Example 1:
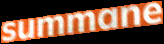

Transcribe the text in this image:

summane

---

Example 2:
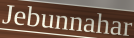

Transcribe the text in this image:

Jebunnahar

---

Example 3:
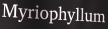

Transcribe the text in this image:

Myriophyllum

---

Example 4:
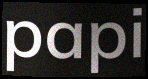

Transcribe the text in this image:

papi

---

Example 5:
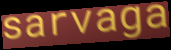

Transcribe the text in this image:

sarvaga